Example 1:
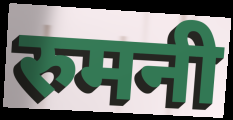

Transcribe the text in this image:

रुमनी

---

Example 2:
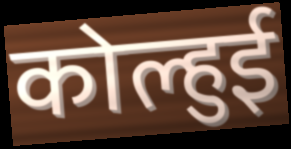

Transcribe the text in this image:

कोल्हुई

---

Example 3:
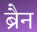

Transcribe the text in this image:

ब्रैन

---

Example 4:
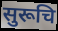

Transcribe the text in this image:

सुरूचि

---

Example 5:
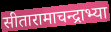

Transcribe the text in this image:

सीतारामाचन्द्राभ्या